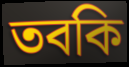
তবকি